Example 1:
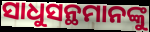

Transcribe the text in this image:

ସାଧୁସନ୍ଥମାନଙ୍କୁ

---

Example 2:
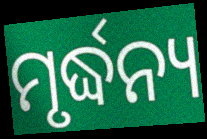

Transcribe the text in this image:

ମୃର୍ଦ୍ଧନ୍ୟ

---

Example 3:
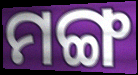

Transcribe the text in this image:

ମଙ୍ଗ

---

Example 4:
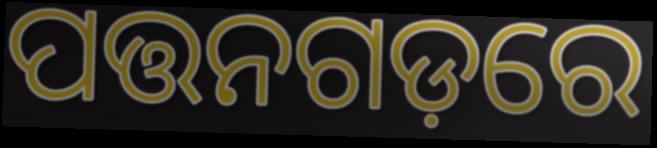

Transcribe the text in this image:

ପତ୍ତନଗଡ଼ରେ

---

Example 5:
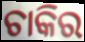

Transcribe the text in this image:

ଚାକିର